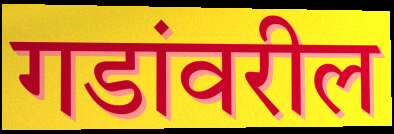
गडांवरील